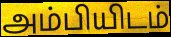
அம்பியிடம்